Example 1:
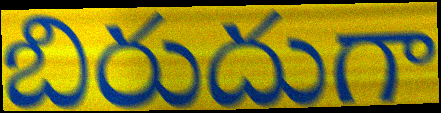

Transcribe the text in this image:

బిరుదుగా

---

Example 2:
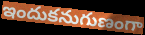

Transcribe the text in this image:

ఇందుకనుగుణంగా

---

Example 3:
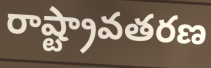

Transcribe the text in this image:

రాష్ట్రావతరణ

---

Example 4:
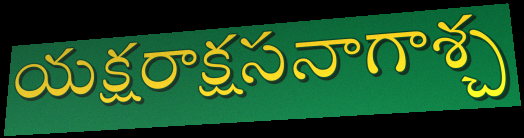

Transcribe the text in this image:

యక్షరాక్షసనాగాశ్చ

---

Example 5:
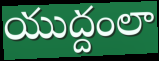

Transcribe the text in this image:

యుద్దంలా